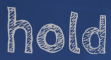
hold